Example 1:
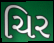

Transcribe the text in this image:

ચિર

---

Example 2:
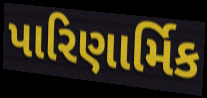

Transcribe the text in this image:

પારિણાર્મિક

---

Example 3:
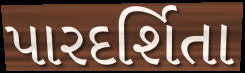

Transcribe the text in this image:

પારદર્શિતા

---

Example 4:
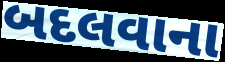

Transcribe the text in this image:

બદલવાના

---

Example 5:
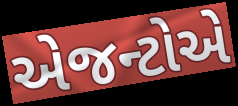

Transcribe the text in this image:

એજન્ટોએ